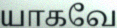
யாகவே